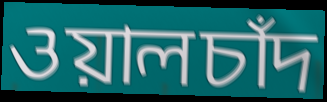
ওয়ালচাঁদ